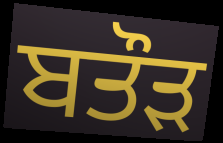
ਬਤੌੜ